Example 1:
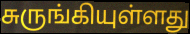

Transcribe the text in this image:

சுருங்கியுள்ளது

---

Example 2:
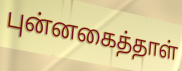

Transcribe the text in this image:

புன்னகைத்தாள்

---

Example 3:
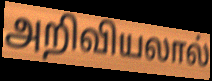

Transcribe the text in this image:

அறிவியலால்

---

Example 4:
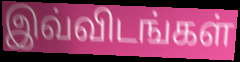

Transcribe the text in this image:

இவ்விடங்கள்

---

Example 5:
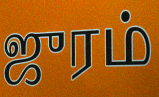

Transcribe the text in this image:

ஜுரம்